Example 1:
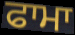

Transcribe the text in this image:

ਫਾਮਾ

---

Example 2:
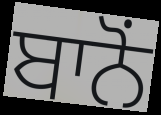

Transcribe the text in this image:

ਬਾਨੋਂ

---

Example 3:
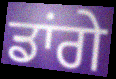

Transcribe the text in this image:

ਡਾਂਗੇ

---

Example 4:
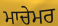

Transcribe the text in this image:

ਮਾਚੇਮਰ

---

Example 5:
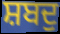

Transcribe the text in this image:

ਸ਼ਬਦੁ